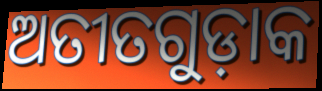
ଅତୀତଗୁଡ଼ାକ